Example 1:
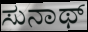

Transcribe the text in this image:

ಸುನಾಥ್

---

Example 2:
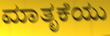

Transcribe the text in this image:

ಮಾತೃಕೆಯು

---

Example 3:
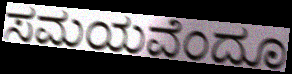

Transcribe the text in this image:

ಸಮಯವೆಂದೂ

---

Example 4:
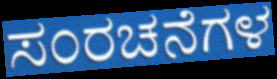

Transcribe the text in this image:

ಸಂರಚನೆಗಳ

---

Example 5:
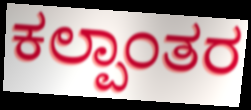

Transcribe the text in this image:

ಕಲ್ಪಾಂತರ